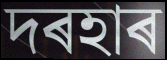
দৰহাৰ